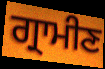
ਗ੍ਰਾਮੀਣ